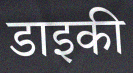
डाइकी